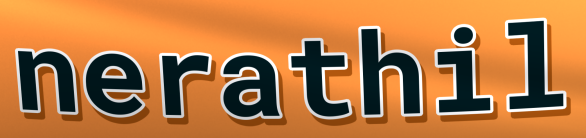
nerathil